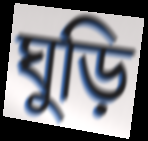
ঘুড়ি